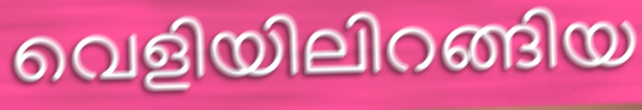
വെളിയിലിറങ്ങിയ